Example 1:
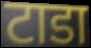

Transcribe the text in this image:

टाडा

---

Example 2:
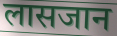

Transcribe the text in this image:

लासजान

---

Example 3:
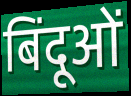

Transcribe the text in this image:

बिंदूओं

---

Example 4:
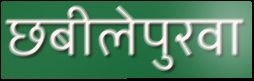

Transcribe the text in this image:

छबीलेपुरवा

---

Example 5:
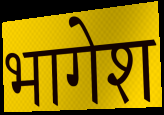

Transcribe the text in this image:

भागेश